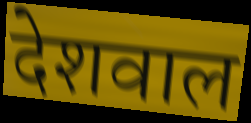
देशवाल